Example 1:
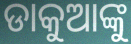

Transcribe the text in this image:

ଡାକୁଆଙ୍କୁ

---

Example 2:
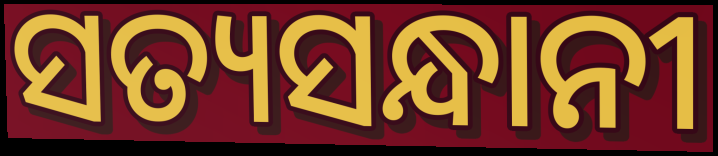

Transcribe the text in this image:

ସତ୍ୟସନ୍ଧାନୀ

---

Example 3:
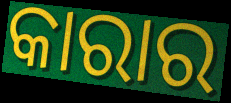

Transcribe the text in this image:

କାରାର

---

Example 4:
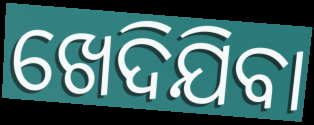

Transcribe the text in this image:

ଖେଦିଯିବା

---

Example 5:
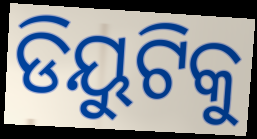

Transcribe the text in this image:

ଡିୟୁଟିକୁ